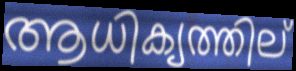
ആധിക്യത്തില്